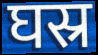
घस्र